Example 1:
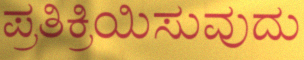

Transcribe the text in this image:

ಪ್ರತಿಕ್ರಿಯಿಸುವುದು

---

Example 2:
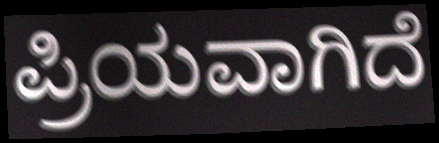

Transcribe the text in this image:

ಪ್ರಿಯವಾಗಿದೆ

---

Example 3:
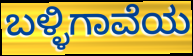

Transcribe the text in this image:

ಬಳ್ಳಿಗಾವೆಯ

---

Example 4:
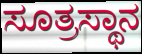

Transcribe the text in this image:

ಸೂತ್ರಸ್ಥಾನ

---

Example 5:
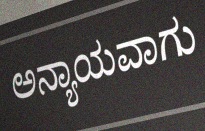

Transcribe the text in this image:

ಅನ್ಯಾಯವಾಗು